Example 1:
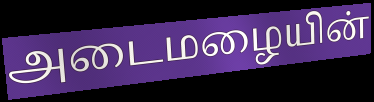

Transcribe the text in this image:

அடைமழையின்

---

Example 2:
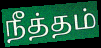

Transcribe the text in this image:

நீத்தம்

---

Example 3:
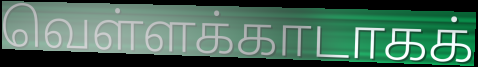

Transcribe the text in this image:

வெள்ளக்காடாகக்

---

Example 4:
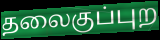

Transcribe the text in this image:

தலைகுப்புற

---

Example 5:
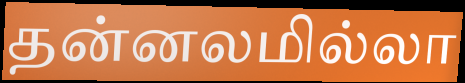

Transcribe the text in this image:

தன்னலமில்லா